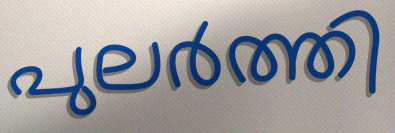
പുലർത്തി